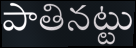
పాతినట్టు